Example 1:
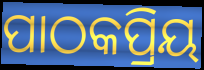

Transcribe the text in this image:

ପାଠକପ୍ରିୟ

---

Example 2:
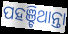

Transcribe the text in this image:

ପହଞ୍ଚିଥାନ୍ତା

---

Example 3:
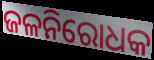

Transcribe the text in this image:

ଜଳନିରୋଧକ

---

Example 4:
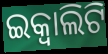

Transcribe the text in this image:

ଇକ୍ୱାଲିଟି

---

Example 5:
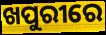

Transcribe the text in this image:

ଖପୁରୀରେ